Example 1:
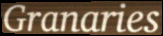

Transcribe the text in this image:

Granaries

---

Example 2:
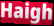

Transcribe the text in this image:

Haigh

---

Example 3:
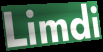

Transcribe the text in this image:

Limdi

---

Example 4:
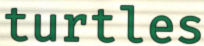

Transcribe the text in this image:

turtles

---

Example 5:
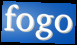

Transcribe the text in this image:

fogo